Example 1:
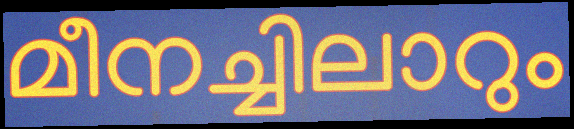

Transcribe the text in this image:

മീനച്ചിലാറും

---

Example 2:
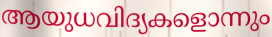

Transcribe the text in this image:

ആയുധവിദ്യകളൊന്നും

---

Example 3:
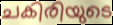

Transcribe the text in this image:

ചകിരിയുടെ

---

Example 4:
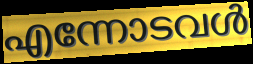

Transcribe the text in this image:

എന്നോടവൾ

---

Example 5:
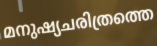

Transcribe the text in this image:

മനുഷ്യചരിത്രത്തെ